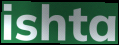
ishta